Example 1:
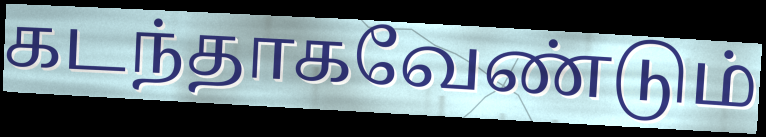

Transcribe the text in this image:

கடந்தாகவேண்டும்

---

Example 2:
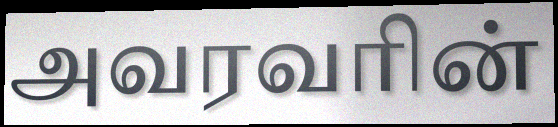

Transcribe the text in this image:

அவரவரின்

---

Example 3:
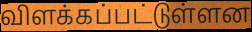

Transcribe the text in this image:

விளக்கப்பட்டுள்ளன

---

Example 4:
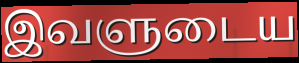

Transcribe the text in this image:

இவளுடைய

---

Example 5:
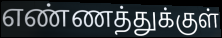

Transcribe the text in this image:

எண்ணத்துக்குள்